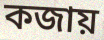
কজায়